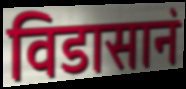
विडासानं